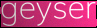
geyser